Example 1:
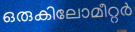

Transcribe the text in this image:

ഒരുകിലോമീറ്റർ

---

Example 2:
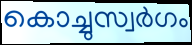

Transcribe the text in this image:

കൊച്ചുസ്വർഗം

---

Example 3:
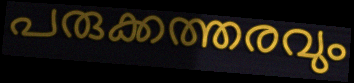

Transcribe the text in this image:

പരുക്കത്തരവും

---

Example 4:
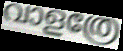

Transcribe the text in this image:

വാളത്രേ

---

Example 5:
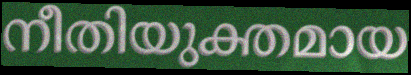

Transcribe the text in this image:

നീതിയുക്തമായ